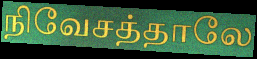
நிவேசத்தாலே